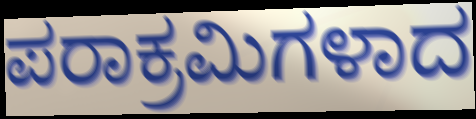
ಪರಾಕ್ರಮಿಗಳಾದ